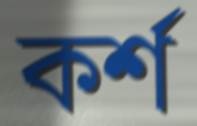
কর্শ